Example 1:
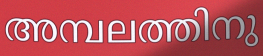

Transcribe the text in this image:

അമ്പലത്തിനു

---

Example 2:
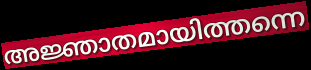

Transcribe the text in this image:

അജ്ഞാതമായിത്തന്നെ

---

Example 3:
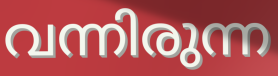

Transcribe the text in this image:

വന്നിരുന്ന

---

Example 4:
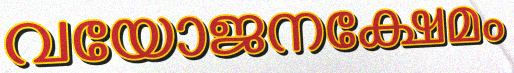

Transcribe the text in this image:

വയോജനക്ഷേമം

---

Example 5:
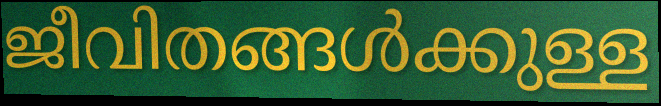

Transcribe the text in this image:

ജീവിതങ്ങൾക്കുള്ള